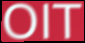
OIT